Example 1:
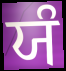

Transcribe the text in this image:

ਯੰ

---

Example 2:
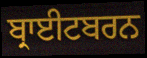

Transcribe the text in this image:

ਬ੍ਰਾਈਟਬਰਨ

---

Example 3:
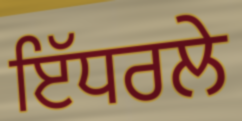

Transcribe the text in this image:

ਇੱਧਰਲੇ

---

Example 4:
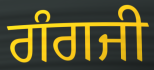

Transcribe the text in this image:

ਗੰਗਜੀ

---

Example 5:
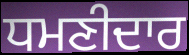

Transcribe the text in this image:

ਧਮਣੀਦਾਰ